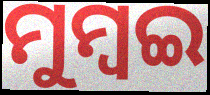
ମୁମ୍ୱଇ